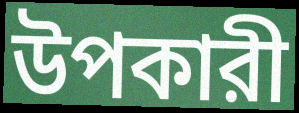
উপকারী